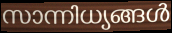
സാന്നിധ്യങ്ങൾ